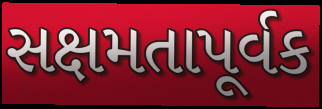
સક્ષમતાપૂર્વક